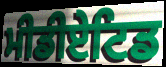
ਮੀਡੀਏਟਿਡ